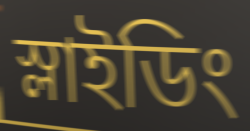
স্লাইডিং